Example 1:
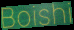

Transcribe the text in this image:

Boishi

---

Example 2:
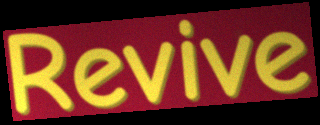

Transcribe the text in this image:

Revive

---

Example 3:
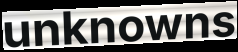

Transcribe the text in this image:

unknowns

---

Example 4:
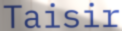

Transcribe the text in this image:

Taisir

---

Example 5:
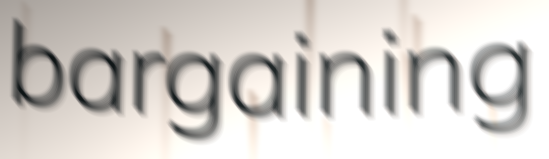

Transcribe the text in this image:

bargaining